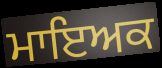
ਮਾਇਅਕ